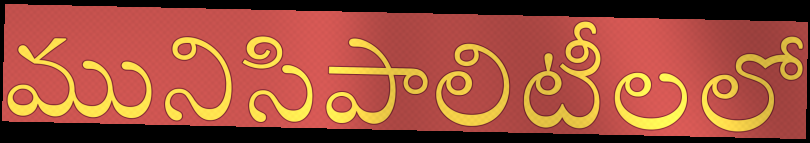
మునిసిపాలిటీలలో